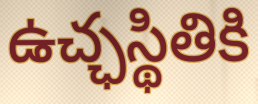
ఉచ్ఛస్థితికి